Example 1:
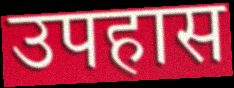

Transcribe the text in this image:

उपहास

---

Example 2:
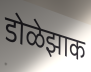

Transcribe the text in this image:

डोळेझाक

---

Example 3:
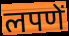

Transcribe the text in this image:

लपणें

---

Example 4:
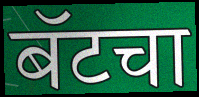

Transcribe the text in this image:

बॅटचा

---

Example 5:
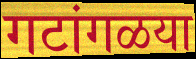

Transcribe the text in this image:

गटांगळया